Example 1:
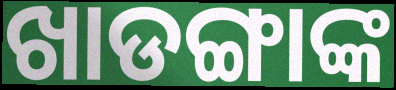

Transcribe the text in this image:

ଖାଡଙ୍ଗାଙ୍କ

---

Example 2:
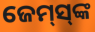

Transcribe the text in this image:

ଜେମ୍‌ସ୍‌ଙ୍କ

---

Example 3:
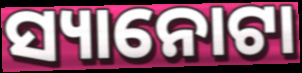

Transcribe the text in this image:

ସ୍ୟାନୋଟା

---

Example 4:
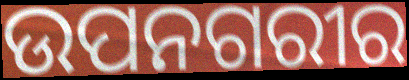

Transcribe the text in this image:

ଉପନଗରୀର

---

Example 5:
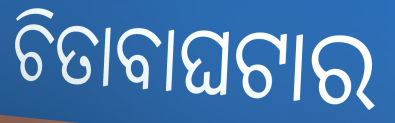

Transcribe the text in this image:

ଚିତାବାଘଟାର